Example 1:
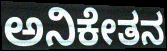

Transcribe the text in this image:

ಅನಿಕೇತನ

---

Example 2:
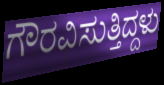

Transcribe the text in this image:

ಗೌರವಿಸುತ್ತಿದ್ದಳು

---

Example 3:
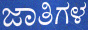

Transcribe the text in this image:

ಜಾತಿಗಳ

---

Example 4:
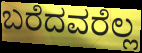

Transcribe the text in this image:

ಬರೆದವರೆಲ್ಲ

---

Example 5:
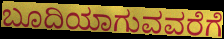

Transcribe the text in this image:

ಬೂದಿಯಾಗುವವರೆಗೆ